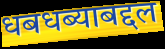
धबधब्याबद्दल